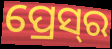
ପ୍ରେସ୍‌ର